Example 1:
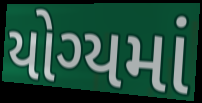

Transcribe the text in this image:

યોગ્યમાં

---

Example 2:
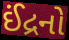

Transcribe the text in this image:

ઈંદ્રનો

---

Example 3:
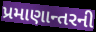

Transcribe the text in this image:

પ્રમાણાન્તરની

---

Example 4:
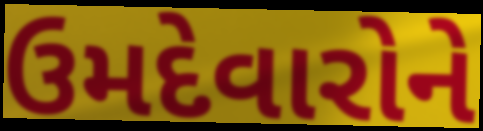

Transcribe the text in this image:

ઉમદેવારોને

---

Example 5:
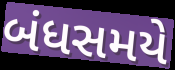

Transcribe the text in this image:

બંધસમયે